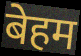
बेहम